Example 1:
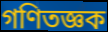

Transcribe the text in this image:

গণিতজ্ঞক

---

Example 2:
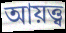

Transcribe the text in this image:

আয়ত্ত্ব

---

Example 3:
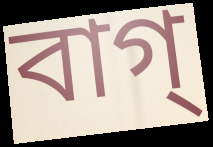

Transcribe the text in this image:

বাগ্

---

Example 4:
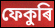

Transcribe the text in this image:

ফেকুৰি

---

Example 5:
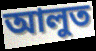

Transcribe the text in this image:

আলুত